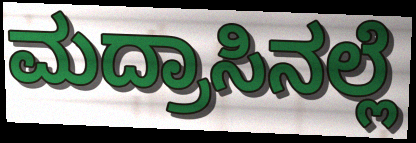
ಮದ್ರಾಸಿನಲ್ಲೆ